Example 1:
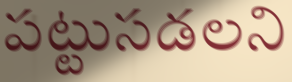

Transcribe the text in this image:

పట్టుసడలని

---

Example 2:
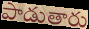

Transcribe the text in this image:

పాడుతారు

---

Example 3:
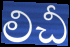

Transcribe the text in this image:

లిచీ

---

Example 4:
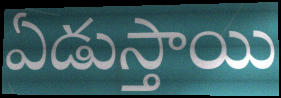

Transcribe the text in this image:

ఏడుస్తాయి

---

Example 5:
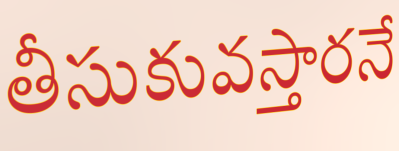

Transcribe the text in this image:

తీసుకువస్తారనే